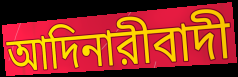
আদিনারীবাদী